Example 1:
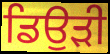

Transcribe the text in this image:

ਡਿਉੜੀ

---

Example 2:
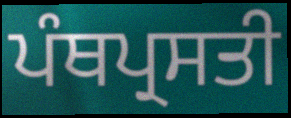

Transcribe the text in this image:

ਪੰਥਪ੍ਰਸਤੀ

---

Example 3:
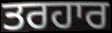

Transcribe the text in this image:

ਤਰਹਾਰ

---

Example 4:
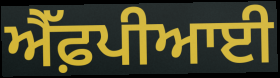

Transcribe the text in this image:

ਐੱਫ਼ਪੀਆਈ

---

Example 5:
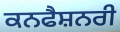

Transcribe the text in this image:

ਕਨਫੈਸ਼ਨਰੀ